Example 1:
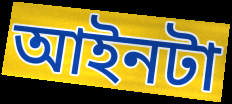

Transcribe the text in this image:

আইনটা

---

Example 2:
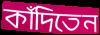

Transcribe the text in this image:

কাঁদিতেন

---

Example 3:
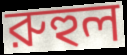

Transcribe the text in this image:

রুহুল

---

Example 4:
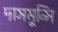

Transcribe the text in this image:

দাসমুন্সি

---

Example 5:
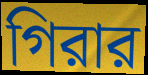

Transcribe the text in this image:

গিরার